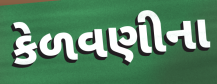
કેળવણીના